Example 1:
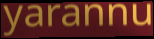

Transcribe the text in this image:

yarannu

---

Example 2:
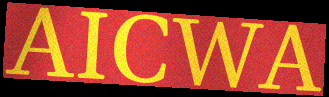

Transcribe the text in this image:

AICWA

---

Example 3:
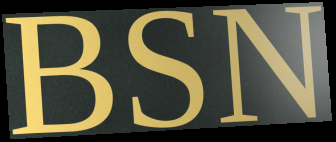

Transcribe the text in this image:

BSN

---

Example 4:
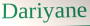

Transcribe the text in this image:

Dariyane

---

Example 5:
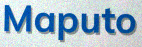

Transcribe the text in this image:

Maputo